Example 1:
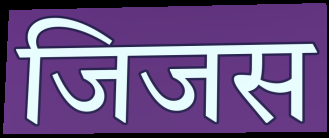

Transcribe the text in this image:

जिजस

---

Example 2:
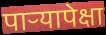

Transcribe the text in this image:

पाऱ्यापेक्षा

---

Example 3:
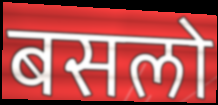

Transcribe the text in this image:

बसलो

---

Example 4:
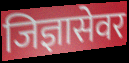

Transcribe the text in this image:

जिज्ञासेवर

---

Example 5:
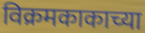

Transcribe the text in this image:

विक्रमकाकाच्या